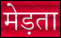
मेड़ता